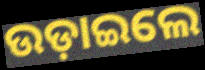
ଉଡ଼ାଇଲେ